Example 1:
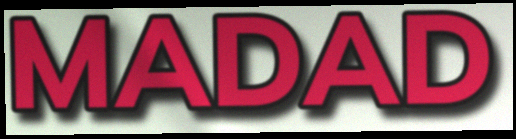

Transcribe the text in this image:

MADAD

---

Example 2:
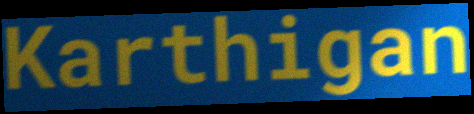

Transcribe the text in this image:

Karthigan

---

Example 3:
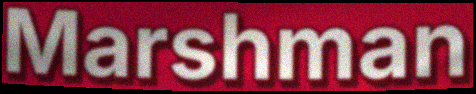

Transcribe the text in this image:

Marshman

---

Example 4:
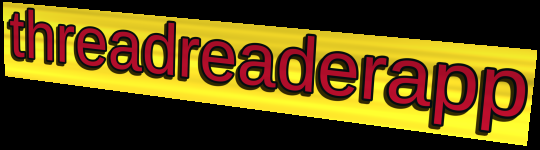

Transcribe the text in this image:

threadreaderapp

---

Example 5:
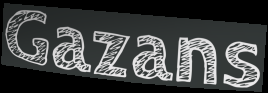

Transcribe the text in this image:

Gazans